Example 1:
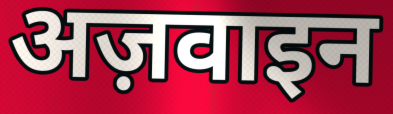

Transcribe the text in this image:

अज़वाइन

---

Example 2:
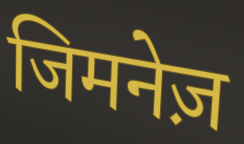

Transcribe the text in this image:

जिमनेज़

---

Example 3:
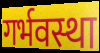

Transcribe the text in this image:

गर्भवस्था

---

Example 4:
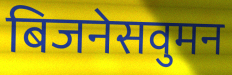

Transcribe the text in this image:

बिजनेसवुमन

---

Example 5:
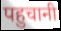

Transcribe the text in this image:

पहुचानी